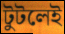
টুটলেই